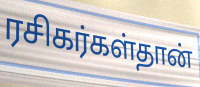
ரசிகர்கள்தான்